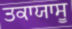
ਤਕਾਯਾਸੂ